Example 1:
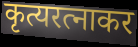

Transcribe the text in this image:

कृत्यरत्नाकर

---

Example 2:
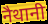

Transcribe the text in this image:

नैथानी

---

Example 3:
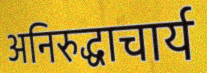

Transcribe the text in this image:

अनिरुद्धाचार्य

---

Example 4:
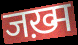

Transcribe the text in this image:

जख़्म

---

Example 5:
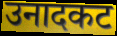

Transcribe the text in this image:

उनादकट